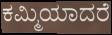
ಕಮ್ಮಿಯಾದರೆ